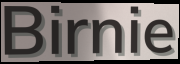
Birnie